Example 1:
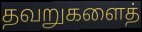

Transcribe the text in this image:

தவறுகளைத்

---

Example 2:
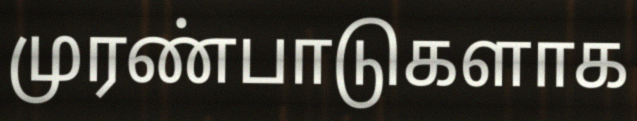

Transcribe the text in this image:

முரண்பாடுகளாக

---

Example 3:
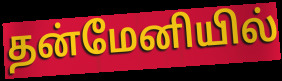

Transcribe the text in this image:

தன்மேனியில்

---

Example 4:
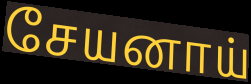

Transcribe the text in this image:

சேயனாய்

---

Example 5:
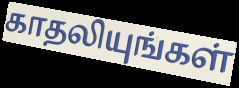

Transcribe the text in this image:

காதலியுங்கள்